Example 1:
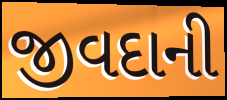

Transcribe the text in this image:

જીવદાની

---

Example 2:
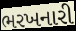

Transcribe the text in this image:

ભરખનારી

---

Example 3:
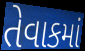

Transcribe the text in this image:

તેવાકમાં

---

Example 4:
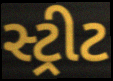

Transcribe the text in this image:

સ્ટ્રીટ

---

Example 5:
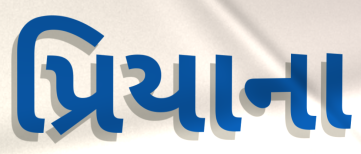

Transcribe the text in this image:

પ્રિયાના